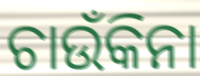
ଚାଉଁକିନା